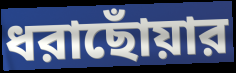
ধরাছোঁয়ার